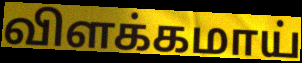
விளக்கமாய்